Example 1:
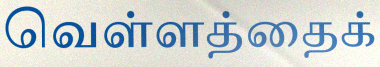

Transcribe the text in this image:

வெள்ளத்தைக்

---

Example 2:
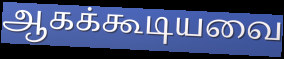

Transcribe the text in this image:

ஆகக்கூடியவை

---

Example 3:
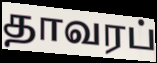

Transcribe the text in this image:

தாவரப்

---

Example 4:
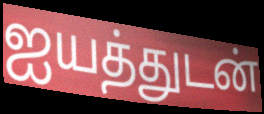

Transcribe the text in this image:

ஐயத்துடன்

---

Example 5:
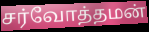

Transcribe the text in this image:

சர்வோத்தமன்